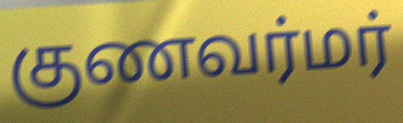
குணவர்மர்